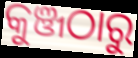
କୁଞ୍ଜଠାରୁ